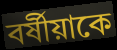
বর্ষীয়াকে